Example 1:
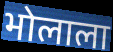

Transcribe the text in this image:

भोलाला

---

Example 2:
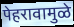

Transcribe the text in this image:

पेहरावामुळे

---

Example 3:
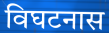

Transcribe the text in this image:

विघटनास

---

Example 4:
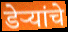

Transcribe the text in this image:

डेर्‍यांचे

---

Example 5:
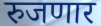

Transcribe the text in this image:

रुजणार